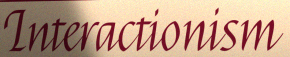
Interactionism